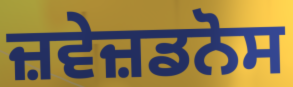
ਜ਼ਵੇਜ਼ਡਨੋਸ